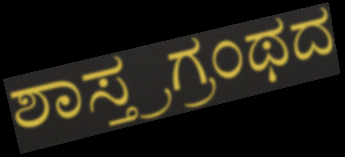
ಶಾಸ್ತ್ರಗ್ರಂಥದ